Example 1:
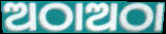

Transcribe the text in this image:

ଅଠାଅଠା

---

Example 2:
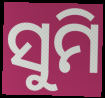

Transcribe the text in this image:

ସୁମି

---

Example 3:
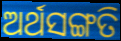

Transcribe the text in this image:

ଅର୍ଥସଙ୍ଗତି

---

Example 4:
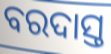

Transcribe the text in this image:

ବରଦାସ୍ତ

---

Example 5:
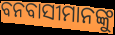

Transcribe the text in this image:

ବନବାସୀମାନଙ୍କୁ